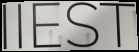
IIEST